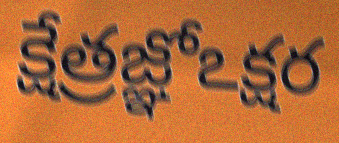
క్షేత్రజ్ఞోఽక్షర